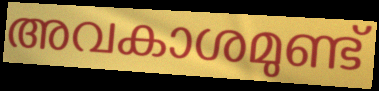
അവകാശമുണ്ട്